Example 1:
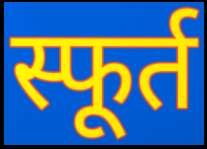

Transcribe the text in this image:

स्फूर्त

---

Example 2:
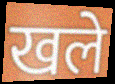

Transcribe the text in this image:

खले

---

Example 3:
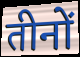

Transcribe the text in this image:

तीनों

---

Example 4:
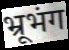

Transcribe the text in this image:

भ्रूभंग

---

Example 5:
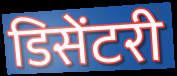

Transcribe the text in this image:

डिसेंटरी